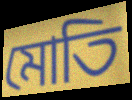
মোতি